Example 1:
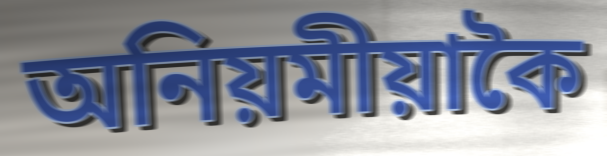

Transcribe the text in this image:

অনিয়মীয়াকৈ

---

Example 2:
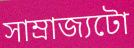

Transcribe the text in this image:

সাম্ৰাজ্যটো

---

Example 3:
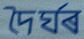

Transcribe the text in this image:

দৈৰ্ঘৰ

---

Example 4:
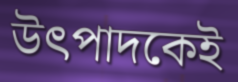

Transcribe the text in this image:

উৎপাদকেই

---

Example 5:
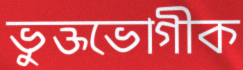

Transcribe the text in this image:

ভুক্তভোগীক